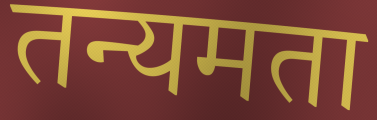
तन्यमता